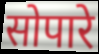
सोपारे